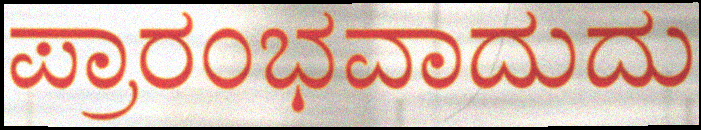
ಪ್ರಾರಂಭವಾದುದು